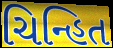
ચિન્હિત